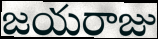
జయరాజు